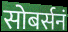
सोबर्सनं